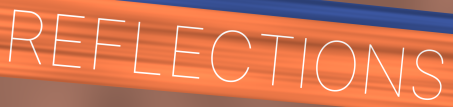
REFLECTIONS